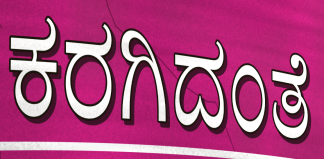
ಕರಗಿದಂತೆ